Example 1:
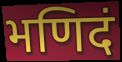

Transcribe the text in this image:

भणिदं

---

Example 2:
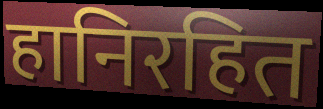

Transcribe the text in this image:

हानिरहित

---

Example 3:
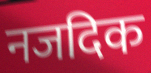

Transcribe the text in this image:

नजदिक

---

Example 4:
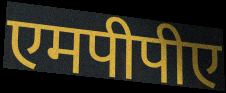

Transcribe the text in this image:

एमपीपीए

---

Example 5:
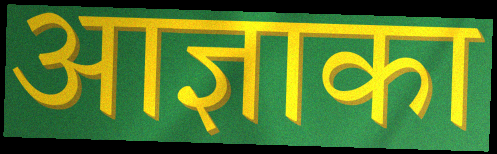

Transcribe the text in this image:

आज्ञाका